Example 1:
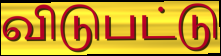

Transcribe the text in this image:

விடுபட்டு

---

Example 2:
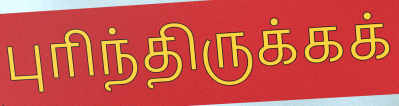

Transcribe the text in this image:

புரிந்திருக்கக்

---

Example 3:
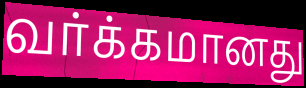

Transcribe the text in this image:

வர்க்கமானது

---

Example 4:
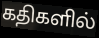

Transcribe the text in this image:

கதிகளில்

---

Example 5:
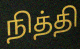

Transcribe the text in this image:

நித்தி